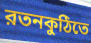
রতনকুঠিতে